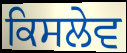
ਕਿਸਲੇਵ